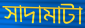
সাদামাটা